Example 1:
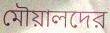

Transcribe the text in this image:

মৌয়ালদের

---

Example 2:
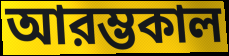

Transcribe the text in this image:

আরম্ভকাল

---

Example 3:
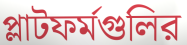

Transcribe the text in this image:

প্লাটফর্মগুলির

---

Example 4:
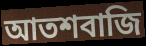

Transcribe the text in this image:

আতশবাজি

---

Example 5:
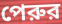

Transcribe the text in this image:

পেরুর